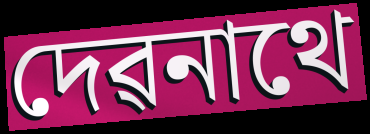
দেৱনাথে